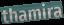
thamira